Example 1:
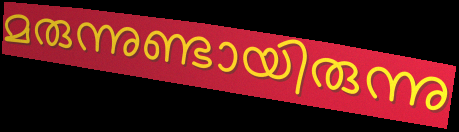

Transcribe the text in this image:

മരുന്നുണ്ടായിരുന്നു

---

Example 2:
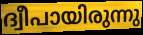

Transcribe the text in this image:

ദ്വീപായിരുന്നു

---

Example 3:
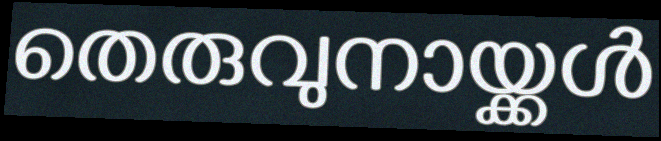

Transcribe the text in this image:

തെരുവുനായ്ക്കൾ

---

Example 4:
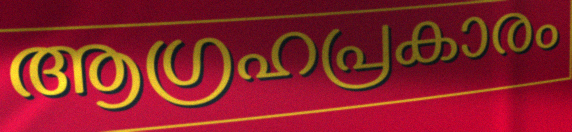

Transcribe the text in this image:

ആഗ്രഹപ്രകാരം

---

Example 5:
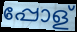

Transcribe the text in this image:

പ്പോള്